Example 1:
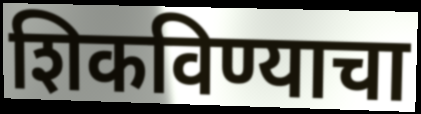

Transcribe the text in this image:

शिकविण्याचा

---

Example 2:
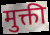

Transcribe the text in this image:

मुक्ती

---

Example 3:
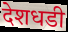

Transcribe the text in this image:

देशधडी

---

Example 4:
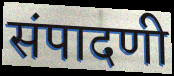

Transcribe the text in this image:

संपादणी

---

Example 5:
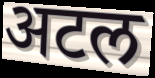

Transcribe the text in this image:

अटल